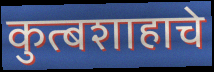
कुत्बशाहाचे